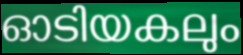
ഓടിയകലും